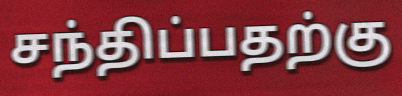
சந்திப்பதற்கு